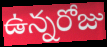
ఉన్నరోజు